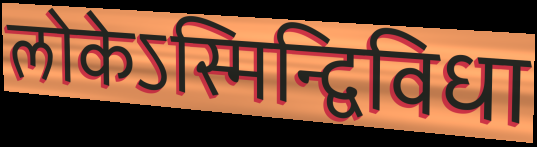
लोकेऽस्मिन्द्विविधा